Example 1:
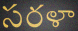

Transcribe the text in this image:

సరళా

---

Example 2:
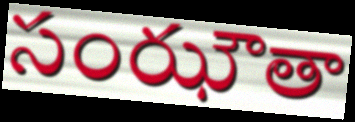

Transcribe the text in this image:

సంఝౌతా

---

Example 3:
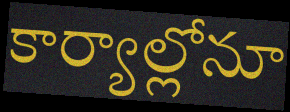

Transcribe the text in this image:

కార్యాల్లోనూ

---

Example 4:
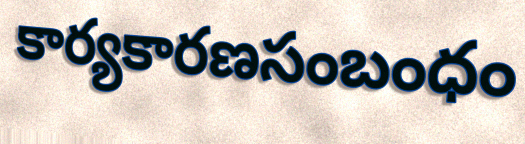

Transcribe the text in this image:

కార్యకారణసంబంధం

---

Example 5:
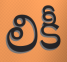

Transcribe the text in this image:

లికీ